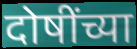
दोषींच्या